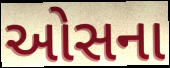
ઓસના